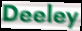
Deeley